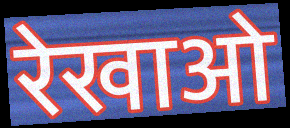
रेखाओ